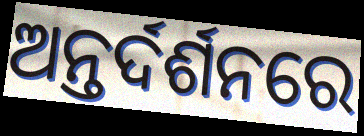
ଅନ୍ତର୍ଦର୍ଶନରେ